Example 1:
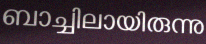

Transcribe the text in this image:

ബാച്ചിലായിരുന്നു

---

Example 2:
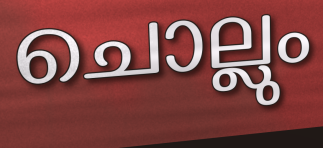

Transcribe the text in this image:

ചൊല്ലും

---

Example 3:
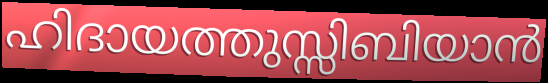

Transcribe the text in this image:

ഹിദായത്തുസ്സിബിയാൻ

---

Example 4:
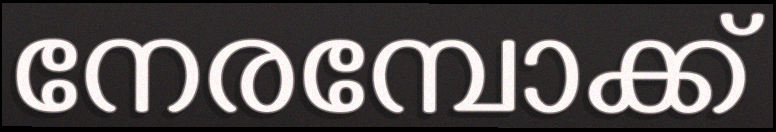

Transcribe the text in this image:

നേരമ്പോക്ക്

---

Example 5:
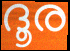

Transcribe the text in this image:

ദൂര